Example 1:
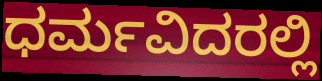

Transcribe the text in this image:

ಧರ್ಮವಿದರಲ್ಲಿ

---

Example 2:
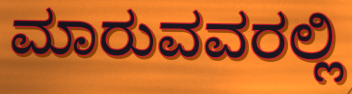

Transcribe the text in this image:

ಮಾರುವವರಲ್ಲಿ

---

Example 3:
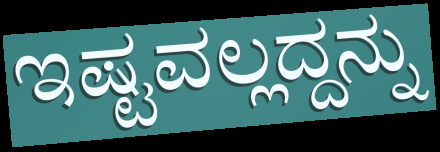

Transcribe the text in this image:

ಇಷ್ಟವಲ್ಲದ್ದನ್ನು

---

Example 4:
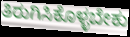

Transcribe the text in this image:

ತಿರುಗಿಸಿಕೊಳ್ಳಬೇಕು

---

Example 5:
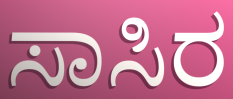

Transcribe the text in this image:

ಸಾಸಿರ